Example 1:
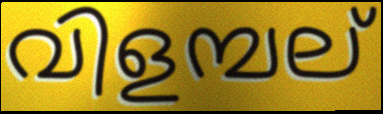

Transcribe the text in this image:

വിളമ്പല്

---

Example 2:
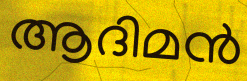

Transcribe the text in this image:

ആദിമൻ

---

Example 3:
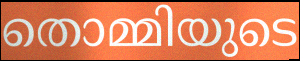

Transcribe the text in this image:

തൊമ്മിയുടെ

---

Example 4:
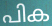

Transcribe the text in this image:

പിക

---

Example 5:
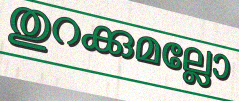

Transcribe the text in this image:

തുറക്കുമല്ലോ